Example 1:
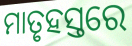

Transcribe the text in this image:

ମାତୃହସ୍ତରେ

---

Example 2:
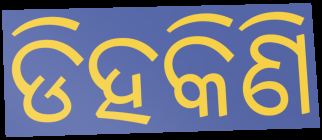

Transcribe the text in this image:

ଡିହକିଣି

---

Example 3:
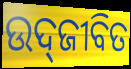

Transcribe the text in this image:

ଉଦ୍‍ଜୀବିତ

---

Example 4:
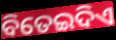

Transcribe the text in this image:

ବିତେଇଦିଏ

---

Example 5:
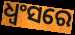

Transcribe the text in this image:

ଧ୍ଵଂସରେ